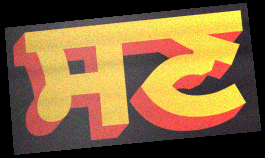
ਸਣ